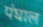
पंघाल